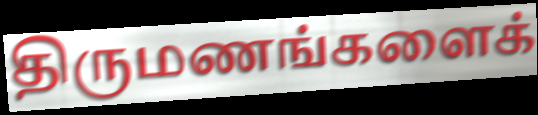
திருமணங்களைக்